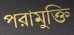
পরামুক্তি